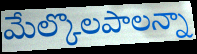
మేల్కొలపాలన్నా